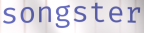
songster